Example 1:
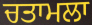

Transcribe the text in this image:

ਚਤਾਮਲਾ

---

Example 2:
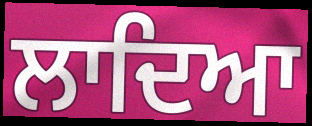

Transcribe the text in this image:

ਲਾਦਿਆ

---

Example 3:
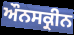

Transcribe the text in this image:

ਔਨਸਕ੍ਰੀਨ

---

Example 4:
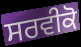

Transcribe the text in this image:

ਸਰਵੀਕੋ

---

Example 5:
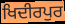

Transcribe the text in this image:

ਖਿਦੀਰਪੁਰ